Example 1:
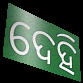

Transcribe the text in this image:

ଦେହି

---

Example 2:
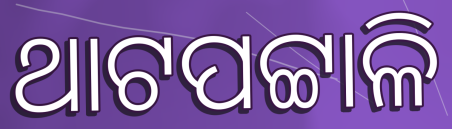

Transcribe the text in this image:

ଥାଟପଟ୍ଟାଳି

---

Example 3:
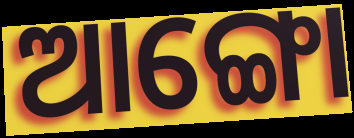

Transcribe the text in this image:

ଆଙ୍ଗୋ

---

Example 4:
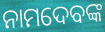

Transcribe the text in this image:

ନାମଦେବଙ୍କ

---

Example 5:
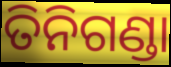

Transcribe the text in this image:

ତିନିଗଣ୍ଡା